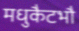
मधुकैटभौ